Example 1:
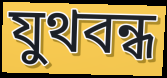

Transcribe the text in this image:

যুথবন্ধ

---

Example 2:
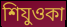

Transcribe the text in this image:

শিযুওকা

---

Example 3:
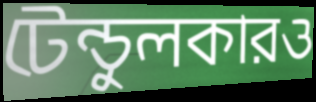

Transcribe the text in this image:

টেন্ডুলকারও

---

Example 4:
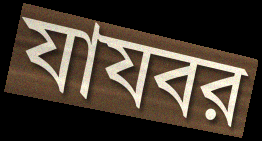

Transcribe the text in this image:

যাযবর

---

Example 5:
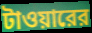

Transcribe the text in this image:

টাওয়ারের